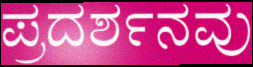
ಪ್ರದರ್ಶನವು